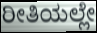
ರೀತಿಯಲ್ಲೇ